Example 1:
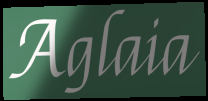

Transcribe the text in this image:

Aglaia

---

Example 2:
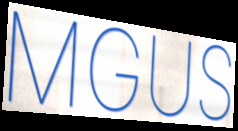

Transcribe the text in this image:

MGUS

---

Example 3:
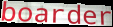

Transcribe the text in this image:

boarder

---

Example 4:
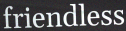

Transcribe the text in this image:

friendless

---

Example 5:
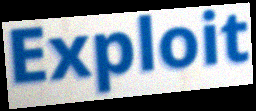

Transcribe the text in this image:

Exploit